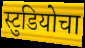
स्टुडियोचा